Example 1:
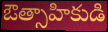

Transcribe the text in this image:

ఔత్సాహికుడి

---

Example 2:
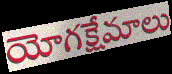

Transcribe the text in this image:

యోగక్షేమాలు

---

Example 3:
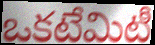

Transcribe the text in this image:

ఒకటేమిటీ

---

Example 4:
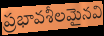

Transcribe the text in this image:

ప్రభావశీలమైనవి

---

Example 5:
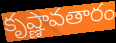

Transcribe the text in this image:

కృష్ణావతారం